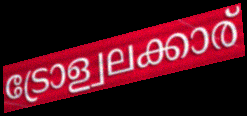
ട്രോള്വലക്കാര്